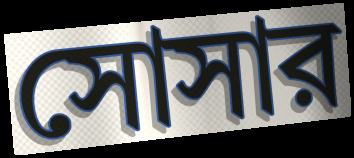
সোসার